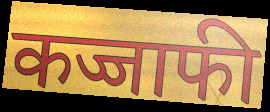
कज्जाफी